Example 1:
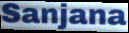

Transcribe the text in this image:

Sanjana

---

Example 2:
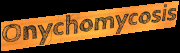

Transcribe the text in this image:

Onychomycosis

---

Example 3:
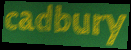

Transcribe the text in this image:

cadbury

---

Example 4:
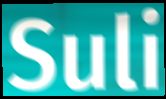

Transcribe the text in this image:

Suli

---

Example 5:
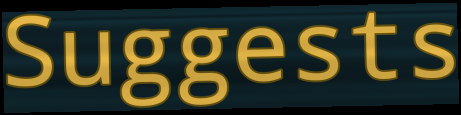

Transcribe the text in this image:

Suggests